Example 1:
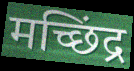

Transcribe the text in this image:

मच्छिंद्र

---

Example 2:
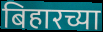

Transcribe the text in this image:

बिहारच्या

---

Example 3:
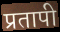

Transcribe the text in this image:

प्रतापी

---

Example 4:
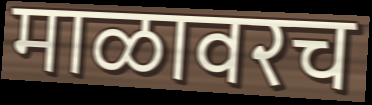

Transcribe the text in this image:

माळावरच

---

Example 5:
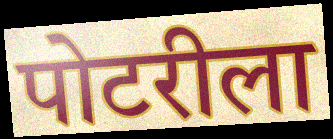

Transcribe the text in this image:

पोटरीला